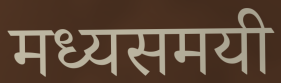
मध्यसमयी